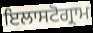
ਇਲਾਸਟੋਗ੍ਰਾਮ